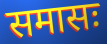
समासः